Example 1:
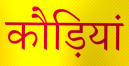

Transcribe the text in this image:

कौड़ियां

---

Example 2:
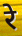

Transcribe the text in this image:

रे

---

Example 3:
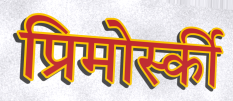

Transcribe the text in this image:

प्रिमोर्स्की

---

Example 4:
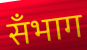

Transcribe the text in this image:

सँभाग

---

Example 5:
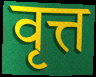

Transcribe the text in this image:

वृत्त